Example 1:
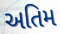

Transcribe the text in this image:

અતિમ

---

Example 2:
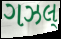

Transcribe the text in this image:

ગઝલ્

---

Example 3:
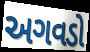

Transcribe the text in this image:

અગવડો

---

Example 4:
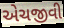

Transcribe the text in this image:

એચજીવી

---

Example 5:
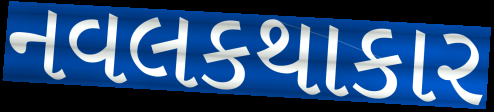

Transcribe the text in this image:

નવલકથાકાર